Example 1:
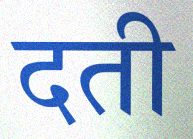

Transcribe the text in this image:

दती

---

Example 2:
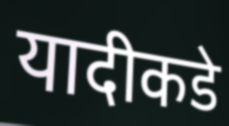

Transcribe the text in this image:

यादीकडे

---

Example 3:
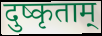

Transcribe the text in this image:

दुष्कृताम्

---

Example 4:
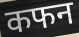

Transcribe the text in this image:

कफन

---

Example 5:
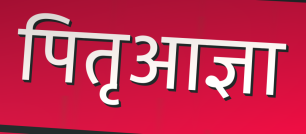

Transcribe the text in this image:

पितृआज्ञा